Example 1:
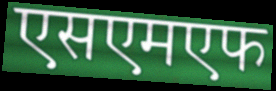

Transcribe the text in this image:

एसएमएफ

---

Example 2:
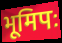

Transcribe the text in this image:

भूमिपः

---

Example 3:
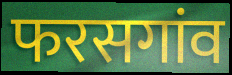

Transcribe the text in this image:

फरसगांव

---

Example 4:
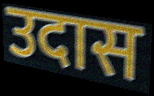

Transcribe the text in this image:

उदास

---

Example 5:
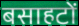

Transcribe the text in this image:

बसाहटों